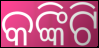
କଙ୍କିଟି